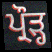
ਪ੍ਰੌੜ੍ਹ